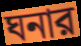
ঘনার